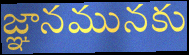
జ్ఞానమునకు